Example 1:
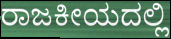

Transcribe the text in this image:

ರಾಜಕೀಯದಲ್ಲಿ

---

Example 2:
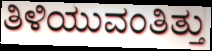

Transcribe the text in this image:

ತಿಳಿಯುವಂತಿತ್ತು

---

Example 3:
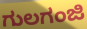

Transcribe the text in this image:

ಗುಲಗಂಜಿ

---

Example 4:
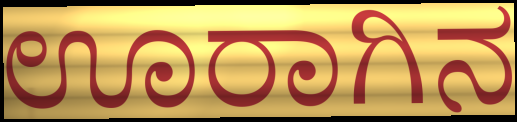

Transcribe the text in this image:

ಊರಾಗಿನ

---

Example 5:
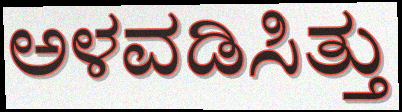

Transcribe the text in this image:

ಅಳವಡಿಸಿತ್ತು